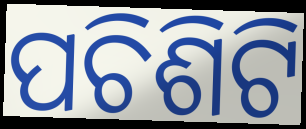
ପଚିଶିଟି